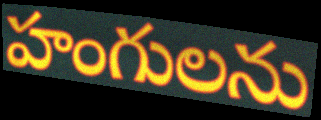
హంగులను